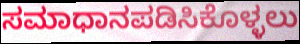
ಸಮಾಧಾನಪಡಿಸಿಕೊಳ್ಳಲು